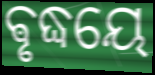
ଵୃଦ୍ଧୟେ